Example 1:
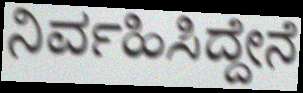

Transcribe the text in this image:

ನಿರ್ವಹಿಸಿದ್ದೇನೆ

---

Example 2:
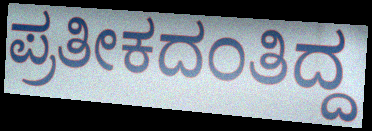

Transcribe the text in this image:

ಪ್ರತೀಕದಂತಿದ್ದ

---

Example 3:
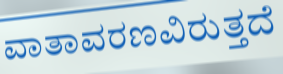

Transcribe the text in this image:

ವಾತಾವರಣವಿರುತ್ತದೆ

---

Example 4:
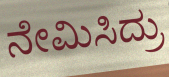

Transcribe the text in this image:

ನೇಮಿಸಿದ್ರು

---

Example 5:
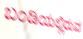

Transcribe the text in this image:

ಬಂಡಿಯಲ್ಲಿರುವ